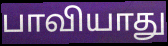
பாவியாது